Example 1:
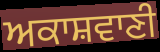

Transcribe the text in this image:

ਅਕਾਸ਼ਵਾਣੀ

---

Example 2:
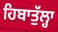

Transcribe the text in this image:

ਹਿਬਾਤੁੱਲ੍ਹਾ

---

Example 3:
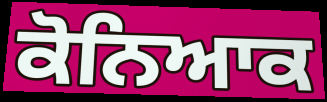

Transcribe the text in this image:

ਕੋਨਿਆਕ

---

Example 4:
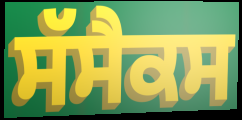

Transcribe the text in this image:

ਸੱਸੈਕਸ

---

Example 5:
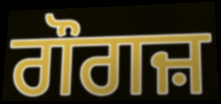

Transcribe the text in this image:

ਗੌਗਜ਼